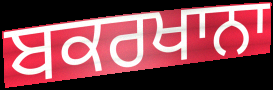
ਬਕਰਖਾਨਾ